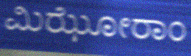
ಮಿಝೋರಾಂ